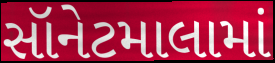
સૉનેટમાલામાં